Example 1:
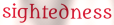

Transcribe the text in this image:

sightedness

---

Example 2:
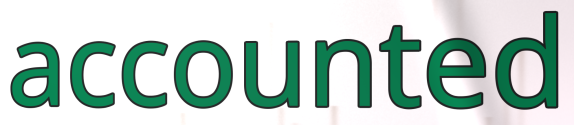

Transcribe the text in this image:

accounted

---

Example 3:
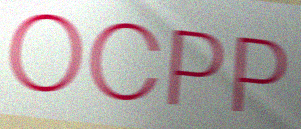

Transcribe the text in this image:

OCPP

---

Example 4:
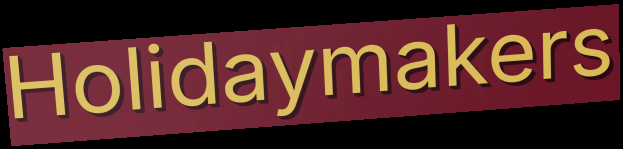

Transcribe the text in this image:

Holidaymakers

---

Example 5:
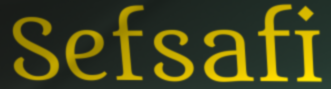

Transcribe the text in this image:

Sefsafi